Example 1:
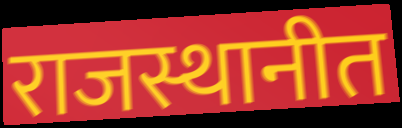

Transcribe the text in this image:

राजस्थानीत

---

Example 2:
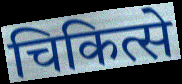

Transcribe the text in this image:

चिकित्से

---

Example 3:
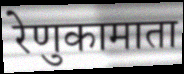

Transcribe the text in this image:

रेणुकामाता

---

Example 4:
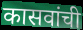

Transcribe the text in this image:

कासवांची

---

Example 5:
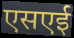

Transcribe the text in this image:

एसएई